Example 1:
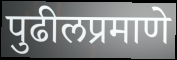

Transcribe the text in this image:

पुढीलप्रमाणे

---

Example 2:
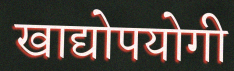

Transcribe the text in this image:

खाद्योपयोगी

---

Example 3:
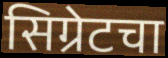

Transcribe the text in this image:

सिग्रेटचा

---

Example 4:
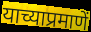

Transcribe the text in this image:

याच्याप्रमाणें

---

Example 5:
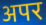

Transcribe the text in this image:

अपर